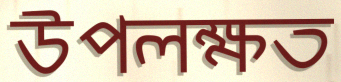
উপলক্ষত